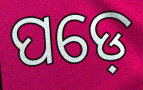
ପଡ଼େ